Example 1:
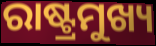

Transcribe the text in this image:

ରାଷ୍ଟ୍ରମୁଖ୍ୟ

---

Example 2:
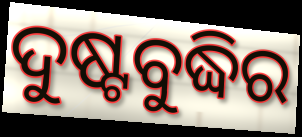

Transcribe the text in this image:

ଦୁଷ୍ଟବୁଦ୍ଧିର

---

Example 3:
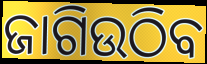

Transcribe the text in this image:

ଜାଗିଉଠିବ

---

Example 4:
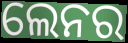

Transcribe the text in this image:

ଲେନର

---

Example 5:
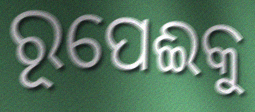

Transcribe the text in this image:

ରୂପେଈକୁ